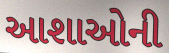
આશાઓની